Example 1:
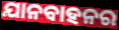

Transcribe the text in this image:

ଯାନବାହନର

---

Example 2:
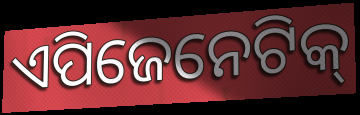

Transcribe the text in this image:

ଏପିଜେନେଟିକ୍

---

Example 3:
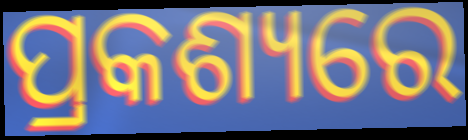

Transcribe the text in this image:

ପ୍ରକଶ୍ୟରେ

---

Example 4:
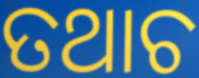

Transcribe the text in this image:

ତଥାଚ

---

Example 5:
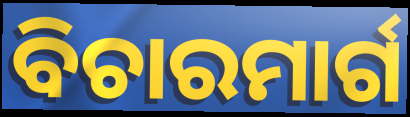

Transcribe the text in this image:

ବିଚାରମାର୍ଗ